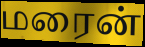
மரைன்